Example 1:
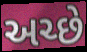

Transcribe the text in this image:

અચ્છે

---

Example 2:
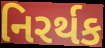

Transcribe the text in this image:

નિરર્થક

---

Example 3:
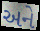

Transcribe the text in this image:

અને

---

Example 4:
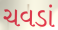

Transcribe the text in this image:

ચવડાં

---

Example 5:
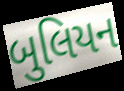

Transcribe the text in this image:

બુલિયન